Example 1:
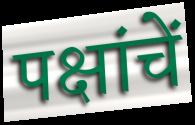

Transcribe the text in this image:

पक्षांचें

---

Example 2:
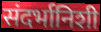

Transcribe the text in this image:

संदर्भानिशी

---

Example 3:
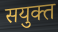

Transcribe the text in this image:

सयुक्त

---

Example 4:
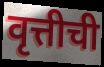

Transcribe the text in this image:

वृत्तीची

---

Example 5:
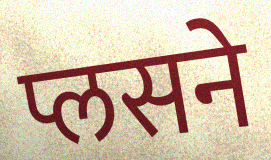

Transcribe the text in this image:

प्लसने